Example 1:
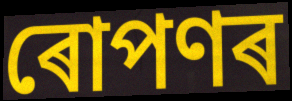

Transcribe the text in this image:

ৰোপণৰ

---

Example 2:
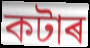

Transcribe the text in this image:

কটাৰ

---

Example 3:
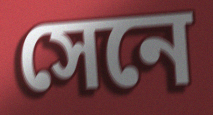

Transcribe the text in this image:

সেনে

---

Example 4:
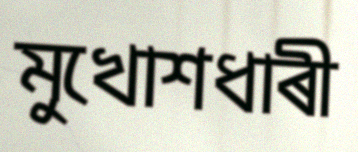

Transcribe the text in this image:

মুখোশধাৰী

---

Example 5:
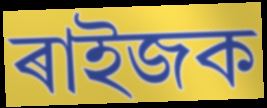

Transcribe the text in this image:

ৰাইজক